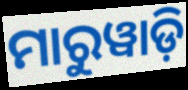
ମାରୁୱାଡ଼ି